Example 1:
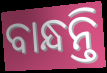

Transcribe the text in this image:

ବାନ୍ଧନ୍ତି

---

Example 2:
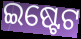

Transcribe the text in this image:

ଇଷ୍ଟେଟ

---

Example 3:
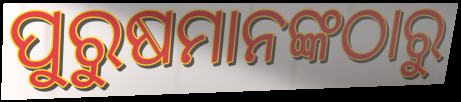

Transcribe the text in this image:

ପୁରୁଷମାନଙ୍କଠାରୁ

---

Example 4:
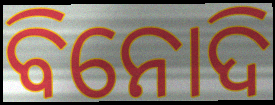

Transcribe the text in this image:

ବିନୋଦି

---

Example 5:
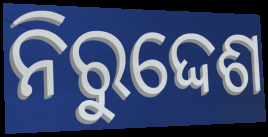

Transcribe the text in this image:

ନିରୁଦ୍ଦେଶ